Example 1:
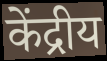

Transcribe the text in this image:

केंद्रीय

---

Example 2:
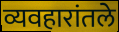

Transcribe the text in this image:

व्यवहारांतले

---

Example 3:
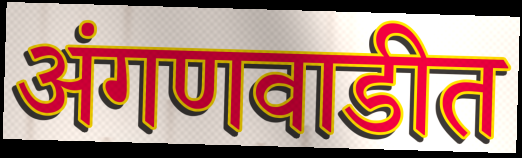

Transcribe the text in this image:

अंगणवाडीत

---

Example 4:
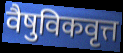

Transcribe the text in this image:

वैषुविकवृत्त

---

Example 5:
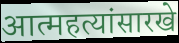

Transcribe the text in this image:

आत्महत्यांसारखे